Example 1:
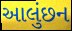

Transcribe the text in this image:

આલુંછન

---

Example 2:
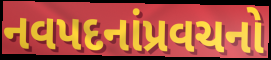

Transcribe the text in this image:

નવપદનાંપ્રવચનો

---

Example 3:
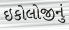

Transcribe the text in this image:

ઇકોલોજીનું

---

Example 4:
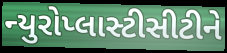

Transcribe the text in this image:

ન્યુરોપ્લાસ્ટીસીટીને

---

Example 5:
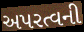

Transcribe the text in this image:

અપરત્વની